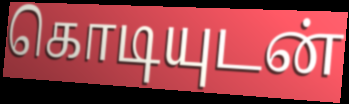
கொடியுடன்